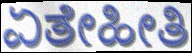
ಏತೇಹೀತಿ